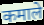
कमाले